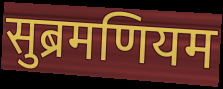
सुब्रमणियम